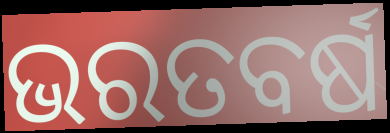
ଭରତବର୍ଷ